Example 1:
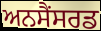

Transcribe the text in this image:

ਅਨਸੈਂਸਰਡ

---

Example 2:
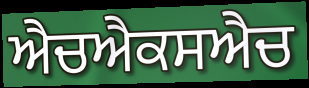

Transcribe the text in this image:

ਐਚਐਕਸਐਚ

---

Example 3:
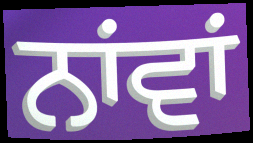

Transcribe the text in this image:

ਨਾਂਵਾਂ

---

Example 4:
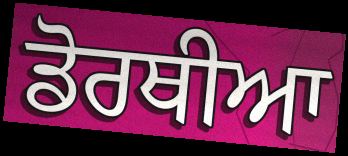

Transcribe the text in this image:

ਡੋਰਥੀਆ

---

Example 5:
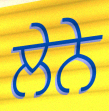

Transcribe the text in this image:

ਲੇਨੇ